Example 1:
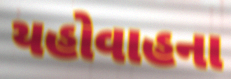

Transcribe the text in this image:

યહોવાહના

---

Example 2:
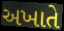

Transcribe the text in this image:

અખાતે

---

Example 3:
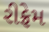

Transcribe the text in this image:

રીફ્રેમ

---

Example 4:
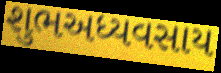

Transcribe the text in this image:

શુભઅધ્યવસાય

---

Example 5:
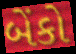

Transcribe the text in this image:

બેંકો